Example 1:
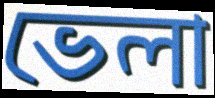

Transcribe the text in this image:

ভেলা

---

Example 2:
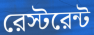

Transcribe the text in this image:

রেস্টরেন্ট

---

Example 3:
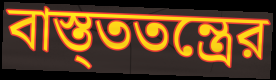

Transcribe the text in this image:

বাস্ত্ততন্ত্রের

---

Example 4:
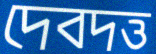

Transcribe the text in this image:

দেবদত্ত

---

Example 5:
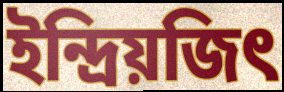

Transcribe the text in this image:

ইন্দ্রিয়জিৎ